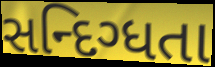
સન્દિગ્ધતા